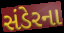
સંડેરના